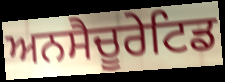
ਅਨਸੈਚੂਰੇਟਿਡ